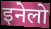
इनेलो